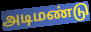
அடிமண்டு